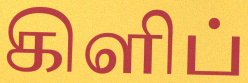
கிளிப்